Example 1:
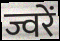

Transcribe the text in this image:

ज्वरें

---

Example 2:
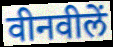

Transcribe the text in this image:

वीनवीलें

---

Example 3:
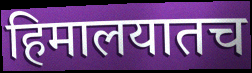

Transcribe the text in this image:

हिमालयातच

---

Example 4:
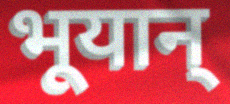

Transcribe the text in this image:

भूयान्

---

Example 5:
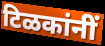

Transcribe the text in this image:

टिळकांनीं